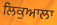
ਲਿਕੁਆਲਾ